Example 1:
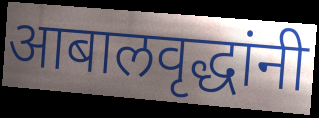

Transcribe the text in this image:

आबालवृद्धांनी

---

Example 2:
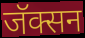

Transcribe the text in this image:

जॅक्सन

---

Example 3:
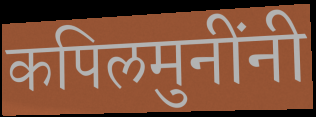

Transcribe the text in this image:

कपिलमुनींनी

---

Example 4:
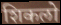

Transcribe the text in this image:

शिकलो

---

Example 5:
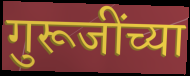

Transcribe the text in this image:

गुरूजींच्या